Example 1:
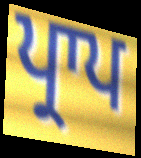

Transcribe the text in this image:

ਪ੍ਰਾਪ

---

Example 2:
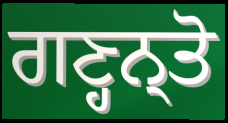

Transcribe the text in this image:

ਗਣ੍ਹਨ੍ਤੋ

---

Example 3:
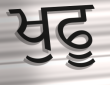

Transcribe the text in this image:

ਖੁਫੂ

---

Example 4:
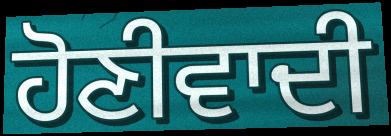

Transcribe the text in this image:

ਹੋਣੀਵਾਦੀ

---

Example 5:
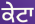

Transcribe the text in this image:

ਕੇਟਾ